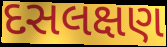
દસલક્ષણ